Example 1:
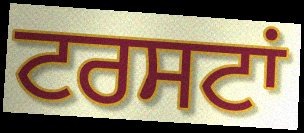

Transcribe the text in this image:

ਟਰਸਟਾਂ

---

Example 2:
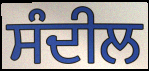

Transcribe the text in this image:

ਸੰਦੀਲ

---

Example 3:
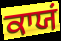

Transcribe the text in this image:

ਕਾਯਂ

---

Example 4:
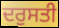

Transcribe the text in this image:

ਦਰੁਸਤੀ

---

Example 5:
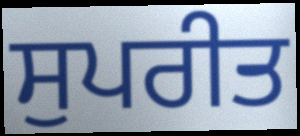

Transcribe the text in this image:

ਸੁਪਰੀਤ